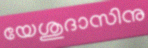
യേശുദാസിനു